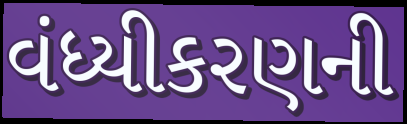
વંધ્યીકરણની